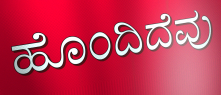
ಹೊಂದಿದೆವು